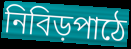
নিবিড়পাঠে